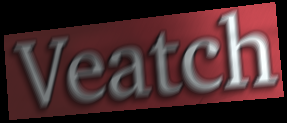
Veatch